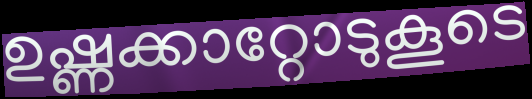
ഉഷ്ണക്കാറ്റോടുകൂടെ